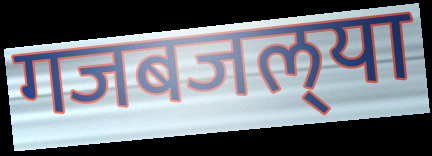
गजबजल्या